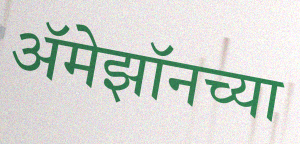
ॲमेझॉनच्या